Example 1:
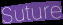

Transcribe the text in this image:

Suture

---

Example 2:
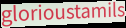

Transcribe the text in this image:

glorioustamils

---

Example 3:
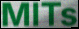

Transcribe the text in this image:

MITs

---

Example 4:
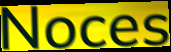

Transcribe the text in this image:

Noces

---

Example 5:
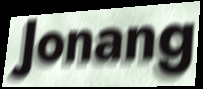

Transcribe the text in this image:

Jonang